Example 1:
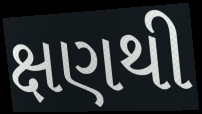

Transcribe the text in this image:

ક્ષણથી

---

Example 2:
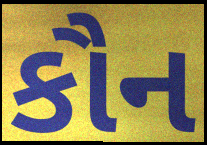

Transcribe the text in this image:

કૌન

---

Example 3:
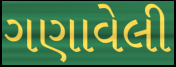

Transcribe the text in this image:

ગણાવેલી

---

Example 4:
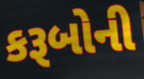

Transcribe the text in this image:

કરૂબોની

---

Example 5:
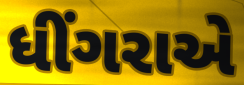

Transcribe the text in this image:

ધીંગરાએ